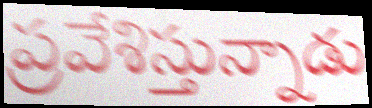
ప్రవేశిస్తున్నాడు